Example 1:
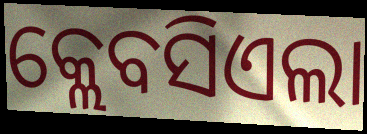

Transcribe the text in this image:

କ୍ଲେବସିଏଲା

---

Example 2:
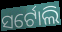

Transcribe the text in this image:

ସର୍ଟୋଲି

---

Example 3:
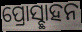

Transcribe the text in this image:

ପ୍ରୋସ୍ଛାହନ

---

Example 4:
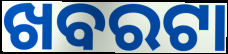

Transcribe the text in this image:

ଖବରଟା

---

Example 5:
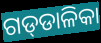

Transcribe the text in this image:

ଗଡ୍‍ଡାଳିକା